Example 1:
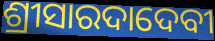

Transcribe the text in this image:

ଶ୍ରୀସାରଦାଦେବୀ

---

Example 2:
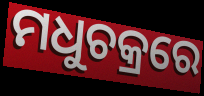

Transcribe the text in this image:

ମଧୁଚକ୍ରରେ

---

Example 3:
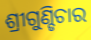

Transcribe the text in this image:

ଶ୍ରୀଗୁଣ୍ଡିଚାର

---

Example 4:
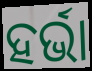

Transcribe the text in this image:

ହର୍ଭା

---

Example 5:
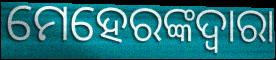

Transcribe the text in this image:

ମେହେରଙ୍କଦ୍ଵାରା